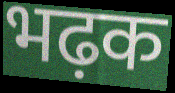
भढ़क